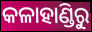
କଳାହାଣ୍ଡିରୁ